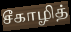
சீகாழித்